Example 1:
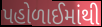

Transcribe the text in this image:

પહોળાઈમાંથી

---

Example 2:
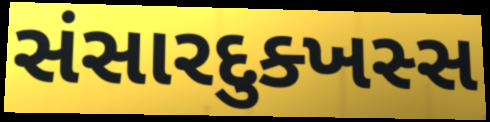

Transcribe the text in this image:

સંસારદુક્ખસ્સ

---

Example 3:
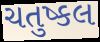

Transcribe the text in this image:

ચતુષ્કલ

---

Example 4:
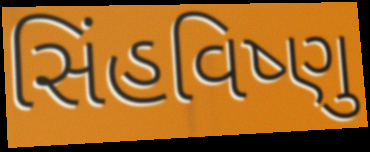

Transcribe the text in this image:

સિંહવિષ્ણુ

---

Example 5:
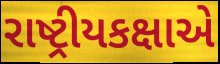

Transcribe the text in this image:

રાષ્ટ્રીયકક્ષાએ